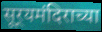
सूर्यमंदिराच्या